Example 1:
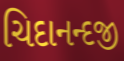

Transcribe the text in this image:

ચિદાનન્દજી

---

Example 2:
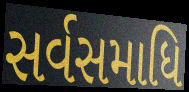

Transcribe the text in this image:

સર્વસમાધિ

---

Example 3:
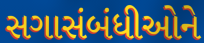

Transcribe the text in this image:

સગાસંબંધીઓને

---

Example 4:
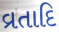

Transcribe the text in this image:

વ્રતાદિ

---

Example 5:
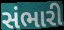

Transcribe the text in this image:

સંભારી